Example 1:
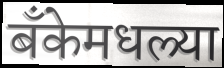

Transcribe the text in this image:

बँकेमधल्या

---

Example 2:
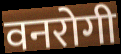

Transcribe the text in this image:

वनरोगी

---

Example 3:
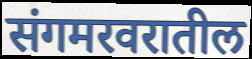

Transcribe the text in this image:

संगमरवरातील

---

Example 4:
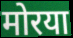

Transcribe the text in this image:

मोरया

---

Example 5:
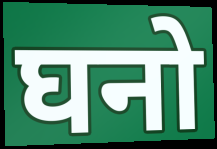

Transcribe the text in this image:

घनो